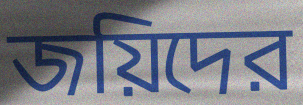
জয়িদের